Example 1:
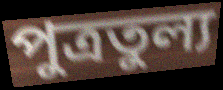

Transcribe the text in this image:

পুত্রতুল্য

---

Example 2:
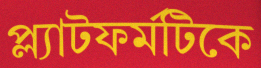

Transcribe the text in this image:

প্ল্যাটফর্মটিকে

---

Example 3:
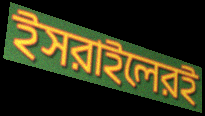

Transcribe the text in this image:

ইসরাইলেরই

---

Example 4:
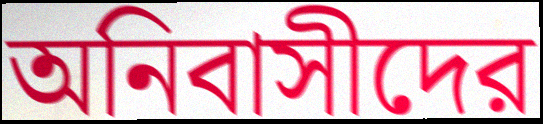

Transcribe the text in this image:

অনিবাসীদের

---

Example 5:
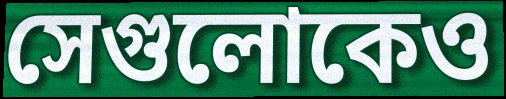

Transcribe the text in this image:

সেগুলোকেও